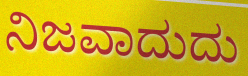
ನಿಜವಾದುದು